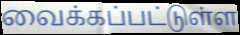
வைக்கப்பட்டுள்ள